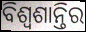
ବିଶ୍ୱଶାନ୍ତିର